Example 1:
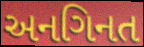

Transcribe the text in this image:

અનગિનત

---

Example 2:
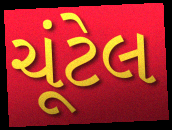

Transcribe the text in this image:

ચૂંટેલ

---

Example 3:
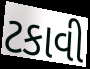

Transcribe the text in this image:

ટકાવી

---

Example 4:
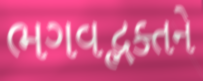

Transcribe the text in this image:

ભગવદ્ભક્તને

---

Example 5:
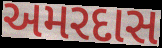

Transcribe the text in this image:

અમરદાસ